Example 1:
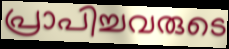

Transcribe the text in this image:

പ്രാപിച്ചവരുടെ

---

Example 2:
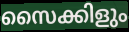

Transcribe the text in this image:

സൈക്കിളും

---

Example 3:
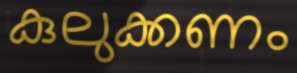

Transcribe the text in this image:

കുലുക്കണം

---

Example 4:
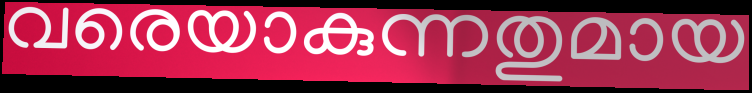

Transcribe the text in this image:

വരെയാകുന്നതുമായ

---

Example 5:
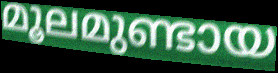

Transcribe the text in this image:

മൂലമുണ്ടായ